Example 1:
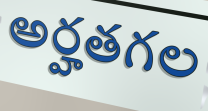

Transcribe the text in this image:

అర్హతగల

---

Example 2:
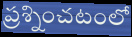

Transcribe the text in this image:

ప్రశ్నించటంలో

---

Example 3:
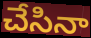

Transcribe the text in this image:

చేసినా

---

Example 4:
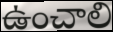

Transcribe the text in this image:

ఉంచాలి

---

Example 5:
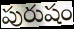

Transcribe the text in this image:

పురుషం